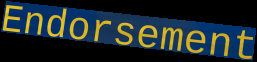
Endorsement